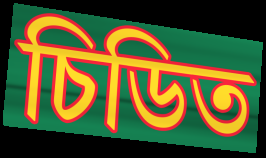
চিডিত